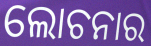
ଲୋଚନାର